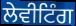
ਲੇਵੀਟਿੰਗ